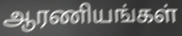
ஆரணியங்கள்